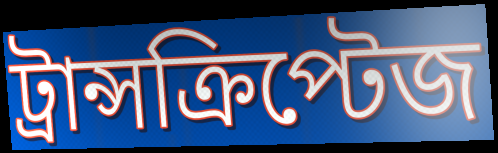
ট্রান্সক্রিপ্টেজ